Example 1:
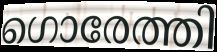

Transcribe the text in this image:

ഗൊരേത്തി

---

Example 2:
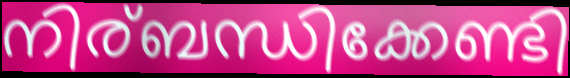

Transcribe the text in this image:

നിര്ബന്ധിക്കേണ്ടി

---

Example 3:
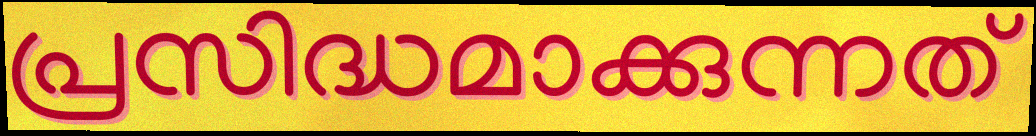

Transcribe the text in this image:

പ്രസിദ്ധമാക്കുന്നത്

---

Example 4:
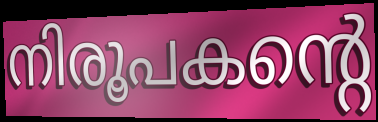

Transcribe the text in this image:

നിരൂപകന്റെ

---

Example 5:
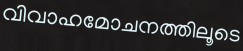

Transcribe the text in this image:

വിവാഹമോചനത്തിലൂടെ